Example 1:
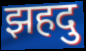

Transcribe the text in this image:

झहदु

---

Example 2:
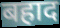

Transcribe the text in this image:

बहाद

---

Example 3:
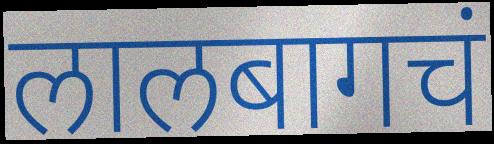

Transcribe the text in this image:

लालबागचं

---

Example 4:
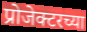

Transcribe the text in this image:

प्रोजेक्टरच्या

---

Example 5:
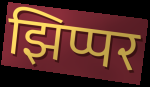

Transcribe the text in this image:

झिप्पर